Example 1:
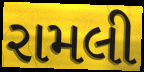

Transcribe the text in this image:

રામલી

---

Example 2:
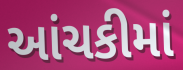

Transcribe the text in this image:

આંચકીમાં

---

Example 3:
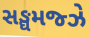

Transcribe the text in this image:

સઙ્ઘમજ્ઝે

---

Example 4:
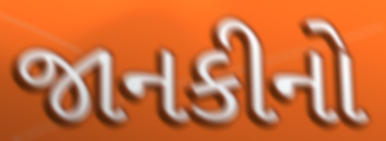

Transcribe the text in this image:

જાનકીનો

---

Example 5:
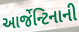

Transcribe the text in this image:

આર્જેન્ટિનાની